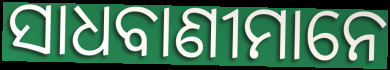
ସାଧବାଣୀମାନେ